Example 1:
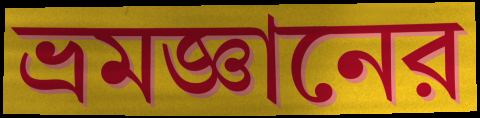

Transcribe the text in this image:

ভ্রমজ্ঞানের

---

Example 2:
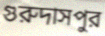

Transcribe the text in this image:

গুরুদাসপুর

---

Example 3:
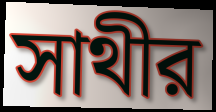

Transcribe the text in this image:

সাথীর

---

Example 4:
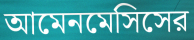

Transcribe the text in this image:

আমেনমেসিসের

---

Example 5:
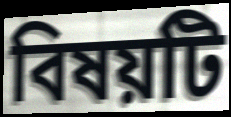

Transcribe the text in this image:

বিষয়টি